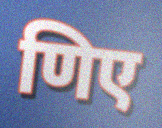
णिए